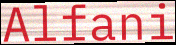
Alfani